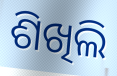
ଶିଖିଲି